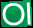
ଠା